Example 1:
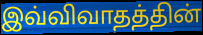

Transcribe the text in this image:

இவ்விவாதத்தின்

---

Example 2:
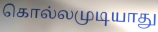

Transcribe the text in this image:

கொல்லமுடியாது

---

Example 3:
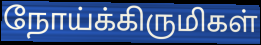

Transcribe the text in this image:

நோய்க்கிருமிகள்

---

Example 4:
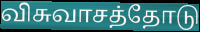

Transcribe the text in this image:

விசுவாசத்தோடு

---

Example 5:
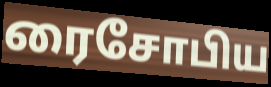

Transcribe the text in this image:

ரைசோபிய